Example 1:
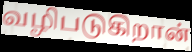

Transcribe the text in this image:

வழிபடுகிறான்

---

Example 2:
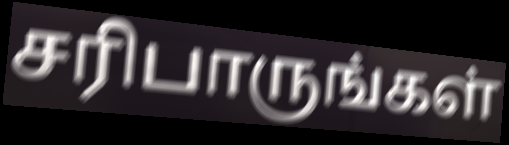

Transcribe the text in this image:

சரிபாருங்கள்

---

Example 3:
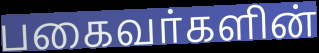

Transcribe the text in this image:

பகைவர்களின்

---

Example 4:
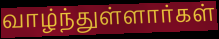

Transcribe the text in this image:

வாழ்ந்துள்ளார்கள்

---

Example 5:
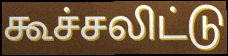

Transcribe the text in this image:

கூச்சலிட்டு